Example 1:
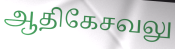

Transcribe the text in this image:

ஆதிகேசவலு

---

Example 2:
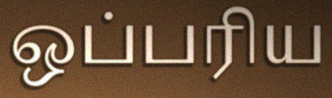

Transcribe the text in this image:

ஒப்பரிய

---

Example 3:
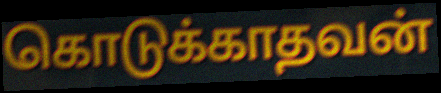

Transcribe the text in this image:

கொடுக்காதவன்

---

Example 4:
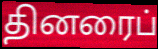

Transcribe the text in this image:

தினரைப்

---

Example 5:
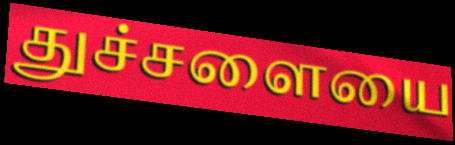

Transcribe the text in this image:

துச்சளையை